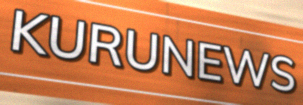
KURUNEWS